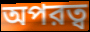
অপরত্ব